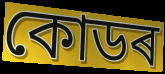
কোডৰ